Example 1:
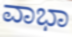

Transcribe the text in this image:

ವಾಭಾ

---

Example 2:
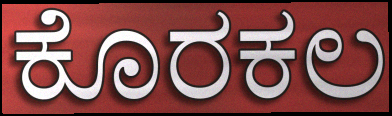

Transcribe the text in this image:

ಕೊರಕಲ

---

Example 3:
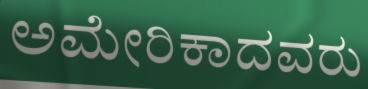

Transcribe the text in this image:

ಅಮೇರಿಕಾದವರು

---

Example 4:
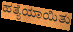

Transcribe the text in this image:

ಹತ್ಯೆಯಾಯಿತು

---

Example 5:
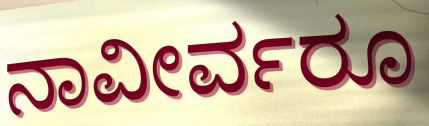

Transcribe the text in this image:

ನಾವೀರ್ವರೂ